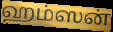
ஹம்ஸன்